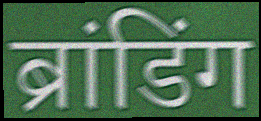
ब्रांडिंग